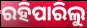
ରହିପାରିଲୁ